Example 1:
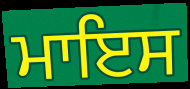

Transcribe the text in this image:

ਮਾਇਸ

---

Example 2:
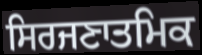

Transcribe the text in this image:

ਸਿਰਜਣਾਤਮਿਕ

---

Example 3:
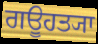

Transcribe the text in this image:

ਗਊਹਤ੍ਯਾ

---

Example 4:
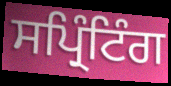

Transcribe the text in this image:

ਸਪ੍ਰਿੰਟਿੰਗ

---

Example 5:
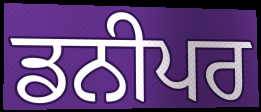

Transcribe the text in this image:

ਡਨੀਪਰ